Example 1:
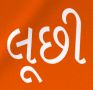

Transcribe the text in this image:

લૂછી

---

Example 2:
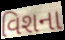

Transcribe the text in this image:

વિશના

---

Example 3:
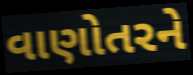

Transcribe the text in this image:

વાણોતરને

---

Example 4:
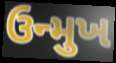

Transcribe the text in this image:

ઉન્મુખ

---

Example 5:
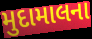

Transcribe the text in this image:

મુદામાલના